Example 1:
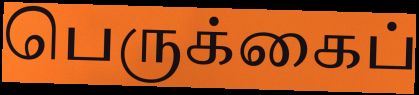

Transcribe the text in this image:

பெருக்கைப்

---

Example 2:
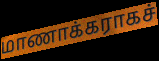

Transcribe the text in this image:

மாணாக்கராகச்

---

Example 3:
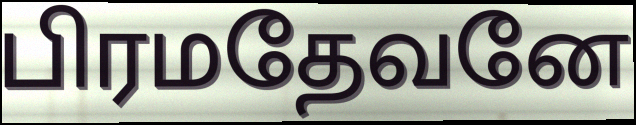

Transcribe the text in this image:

பிரமதேவனே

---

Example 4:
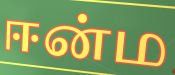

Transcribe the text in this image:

ஈன்ம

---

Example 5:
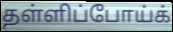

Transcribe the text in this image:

தள்ளிப்போய்க்